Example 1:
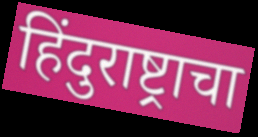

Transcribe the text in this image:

हिंदुराष्ट्राचा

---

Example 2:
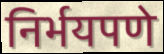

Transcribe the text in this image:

निर्भयपणे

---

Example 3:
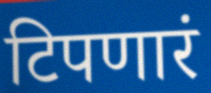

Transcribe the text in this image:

टिपणारं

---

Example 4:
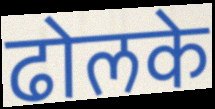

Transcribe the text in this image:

ढोलके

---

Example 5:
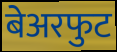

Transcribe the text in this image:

बेअरफुट